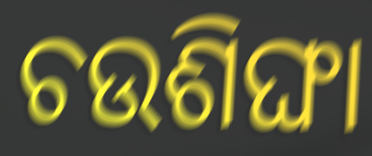
ଚଉଶିଙ୍ଘା